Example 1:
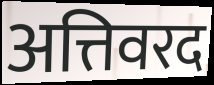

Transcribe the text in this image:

अत्तिवरद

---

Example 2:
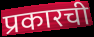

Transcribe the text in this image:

प्रकारची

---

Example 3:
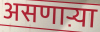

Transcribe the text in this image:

असणाऱ्‍या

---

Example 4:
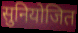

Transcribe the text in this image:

सुनियोजित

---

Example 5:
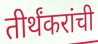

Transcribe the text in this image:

तीर्थंकरांची